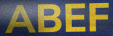
ABEF